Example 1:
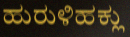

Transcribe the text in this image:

ಹುರುಳಿಹಕ್ಲು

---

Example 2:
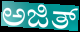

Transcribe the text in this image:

ಅಜಿತ್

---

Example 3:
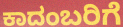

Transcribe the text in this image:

ಕಾದಂಬರಿಗೆ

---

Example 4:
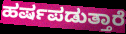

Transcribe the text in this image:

ಹರ್ಷಪಡುತ್ತಾರೆ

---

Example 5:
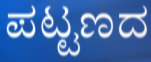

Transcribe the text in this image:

ಪಟ್ಟಣದ